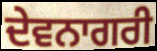
ਦੇਵਨਾਗਰੀ